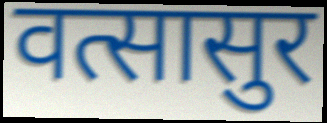
वत्सासुर